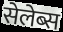
सेलेब्‍स